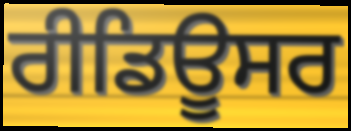
ਰੀਡਿਊਸਰ